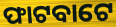
ଫାଟବାଟେ